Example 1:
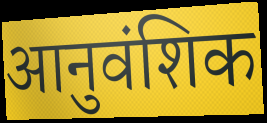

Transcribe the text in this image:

आनुवंशिक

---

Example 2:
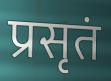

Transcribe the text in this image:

प्रसृतं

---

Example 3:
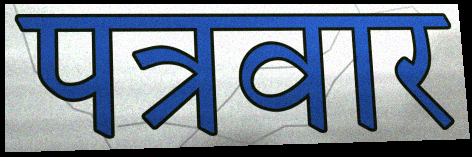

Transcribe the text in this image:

पत्रवार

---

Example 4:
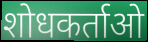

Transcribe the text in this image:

शोधकर्ताओ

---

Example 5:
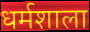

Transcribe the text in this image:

धर्मशाला